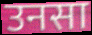
उनसा